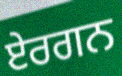
ਏਰਗਨ